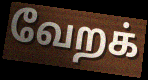
வேறக்